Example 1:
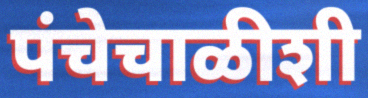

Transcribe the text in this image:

पंचेचाळीशी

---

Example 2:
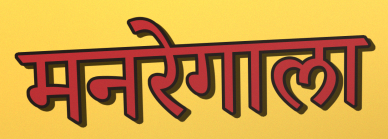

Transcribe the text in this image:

मनरेगाला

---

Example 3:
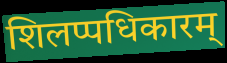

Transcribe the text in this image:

शिलप्पधिकारम्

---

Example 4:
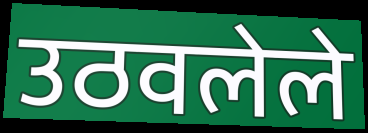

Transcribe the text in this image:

उठवलेले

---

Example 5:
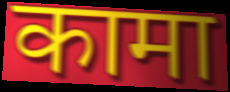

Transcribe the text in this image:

कामा